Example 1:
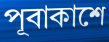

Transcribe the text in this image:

পূবাকাশে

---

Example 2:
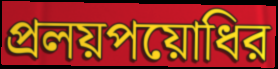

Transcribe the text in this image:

প্রলয়পয়োধির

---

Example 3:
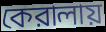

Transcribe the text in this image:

কেরালায়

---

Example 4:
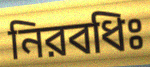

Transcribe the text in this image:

নিরবধিঃ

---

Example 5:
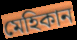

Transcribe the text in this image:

মেহিকান